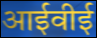
आईवीई